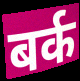
बर्क